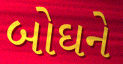
બોઘને